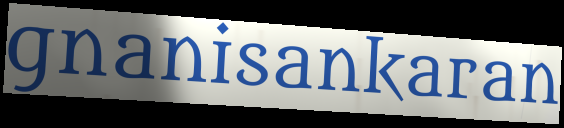
gnanisankaran